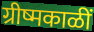
ग्रीष्मकाळीं